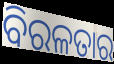
ବିରଳତାର